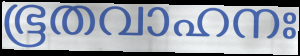
ഭൂതവാഹനഃ